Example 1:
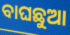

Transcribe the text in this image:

ବାଘଛୁଆ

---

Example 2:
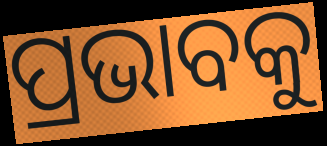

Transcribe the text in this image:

ପ୍ରଭାବକୁ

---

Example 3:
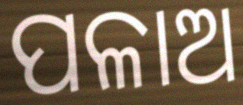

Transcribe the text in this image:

ପଳାଅ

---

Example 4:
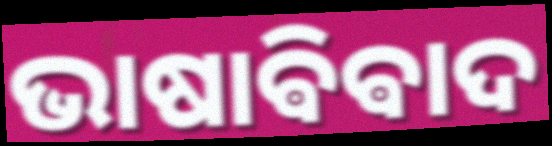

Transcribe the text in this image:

ଭାଷାଵିଵାଦ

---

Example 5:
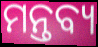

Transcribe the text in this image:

ମନ୍ତବ୍ୟ